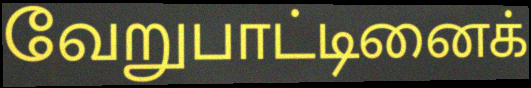
வேறுபாட்டினைக்